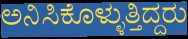
ಅನಿಸಿಕೊಳ್ಳುತ್ತಿದ್ದರು